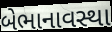
બેભાનાવસ્થા